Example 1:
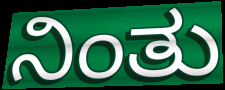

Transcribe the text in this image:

ನಿಂತು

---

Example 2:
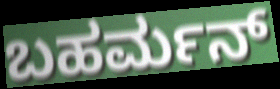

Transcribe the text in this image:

ಬಹರ್ಮನ್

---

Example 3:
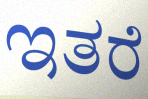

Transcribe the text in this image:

ಇತರೆ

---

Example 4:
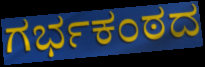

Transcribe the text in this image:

ಗರ್ಭಕಂಠದ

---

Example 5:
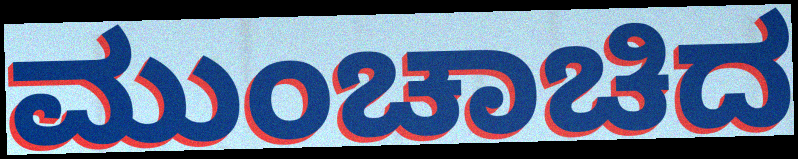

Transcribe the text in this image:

ಮುಂಚಾಚಿದ